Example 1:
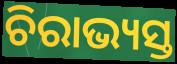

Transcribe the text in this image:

ଚିରାଭ୍ୟସ୍ତ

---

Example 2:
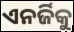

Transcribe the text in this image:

ଏନର୍ଜିକୁ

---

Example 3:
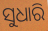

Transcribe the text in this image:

ସୁଧାରି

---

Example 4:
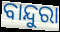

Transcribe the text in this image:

ବାନ୍ଦୁରା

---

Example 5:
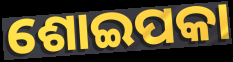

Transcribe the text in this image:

ଶୋଇପକା